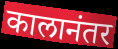
कालानंतर